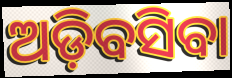
ଅଡ଼ିବସିବା